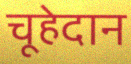
चूहेदान